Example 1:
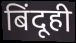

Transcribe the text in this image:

बिंदूही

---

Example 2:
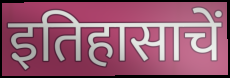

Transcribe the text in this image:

इतिहासाचें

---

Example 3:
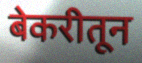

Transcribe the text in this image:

बेकरीतून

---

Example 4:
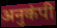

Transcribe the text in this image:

अनुकंपी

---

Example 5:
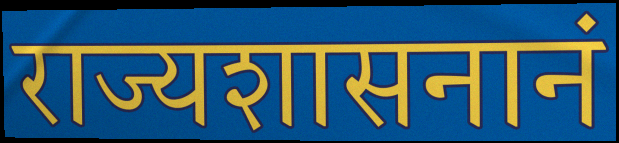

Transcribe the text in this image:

राज्यशासनानं